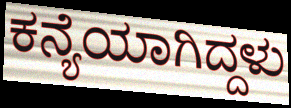
ಕನ್ಯೆಯಾಗಿದ್ದಳು